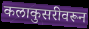
कलाकुसरीवरून